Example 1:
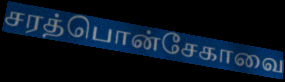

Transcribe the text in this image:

சரத்பொன்சேகாவை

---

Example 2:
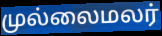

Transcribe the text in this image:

முல்லைமலர்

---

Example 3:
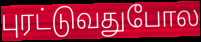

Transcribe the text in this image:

புரட்டுவதுபோல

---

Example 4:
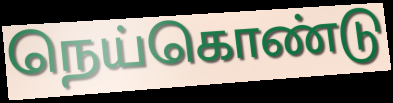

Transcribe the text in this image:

நெய்கொண்டு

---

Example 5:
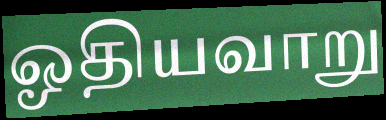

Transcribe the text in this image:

ஓதியவாறு